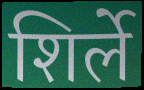
शिर्ले